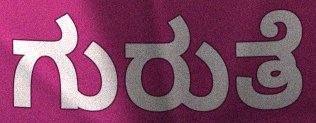
ಗುರುತೆ